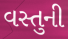
વસ્તુની